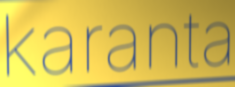
karanta